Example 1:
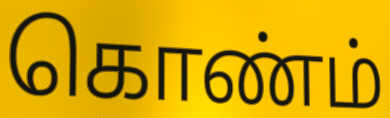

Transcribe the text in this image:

கொண்ம்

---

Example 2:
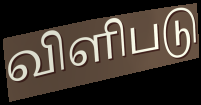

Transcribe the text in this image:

விளிபடு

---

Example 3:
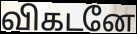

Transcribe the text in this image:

விகடனே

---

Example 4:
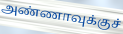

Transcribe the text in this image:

அண்ணாவுக்குச்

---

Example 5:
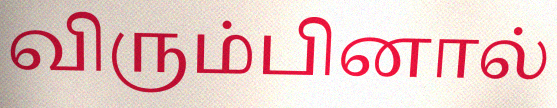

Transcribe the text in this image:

விரும்பினால்